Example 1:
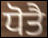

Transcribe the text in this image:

ਧੋਤੈ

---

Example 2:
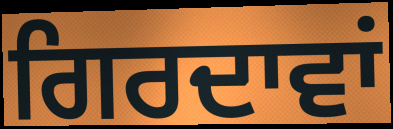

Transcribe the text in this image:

ਗਿਰਦਾਵਾਂ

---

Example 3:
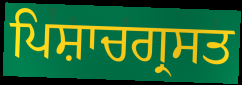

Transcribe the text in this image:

ਪਿਸ਼ਾਚਗ੍ਰਸਤ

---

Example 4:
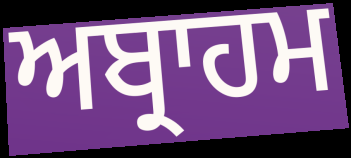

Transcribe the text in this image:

ਅਬ੍ਰਾਹਮ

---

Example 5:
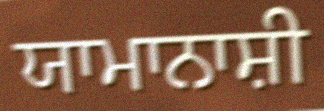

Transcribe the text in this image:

ਯਾਮਾਨਾਸ਼ੀ